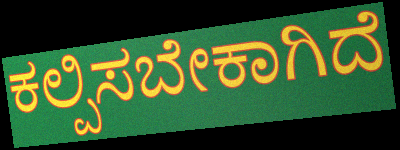
ಕಲ್ಪಿಸಬೇಕಾಗಿದೆ